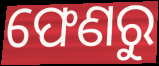
ଫେଣରୁ